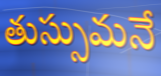
తుస్సుమనే